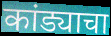
कांड्याचा